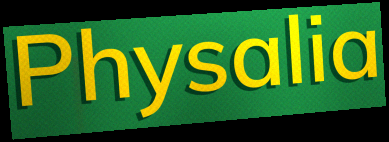
Physalia